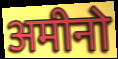
अमीनो